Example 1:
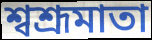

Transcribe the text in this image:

শ্বশ্রূমাতা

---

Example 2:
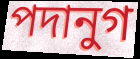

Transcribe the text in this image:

পদানুগ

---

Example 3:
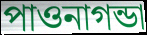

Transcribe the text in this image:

পাওনাগন্ডা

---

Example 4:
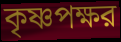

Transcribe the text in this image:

কৃষ্ণপক্ষর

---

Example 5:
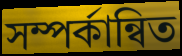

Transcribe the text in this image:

সম্পর্কান্বিত